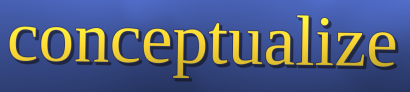
conceptualize